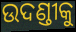
ଉଦଣ୍ଡୀକୁ